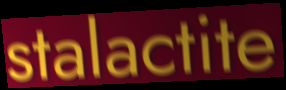
stalactite